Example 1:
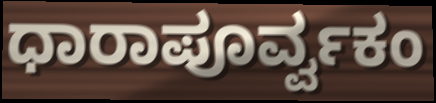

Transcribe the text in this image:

ಧಾರಾಪೂರ್ವ್ವಕಂ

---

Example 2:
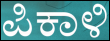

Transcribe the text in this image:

ಪಿಕಾಳಿ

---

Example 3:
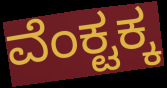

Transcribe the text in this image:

ವೆಂಕ್ಟಕ್ಕ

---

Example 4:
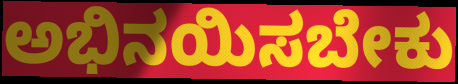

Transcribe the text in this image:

ಅಭಿನಯಿಸಬೇಕು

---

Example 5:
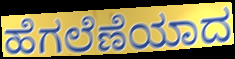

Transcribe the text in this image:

ಹೆಗಲೆಣೆಯಾದ